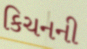
કિચનની